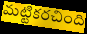
మట్టికరచింది